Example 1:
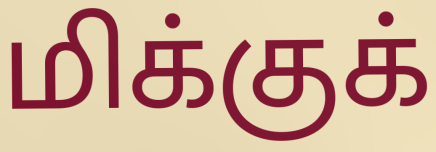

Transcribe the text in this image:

மிக்குக்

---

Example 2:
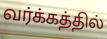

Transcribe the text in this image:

வர்க்கத்தில்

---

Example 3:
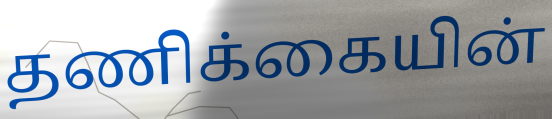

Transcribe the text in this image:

தணிக்கையின்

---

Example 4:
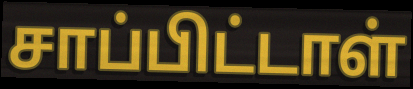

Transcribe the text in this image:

சாப்பிட்டாள்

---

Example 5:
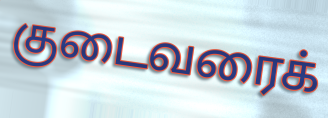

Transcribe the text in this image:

குடைவரைக்